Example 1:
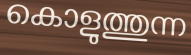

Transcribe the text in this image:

കൊളുത്തുന്ന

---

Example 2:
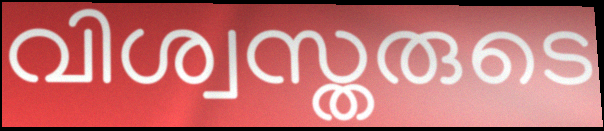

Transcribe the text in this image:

വിശ്വസ്തരുടെ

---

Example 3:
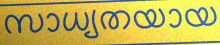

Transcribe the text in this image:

സാധ്യതയായ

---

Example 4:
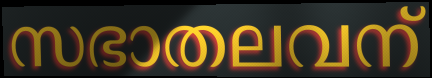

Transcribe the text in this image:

സഭാതലവന്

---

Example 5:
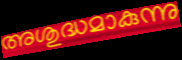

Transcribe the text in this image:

അശുദ്ധമാകുന്നു